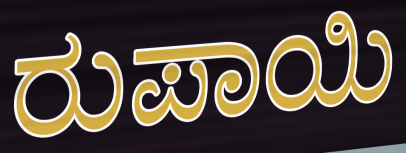
ರುಪಾಯಿ